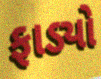
ફાડ્યો